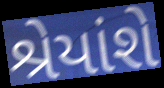
શ્રેયાંશે